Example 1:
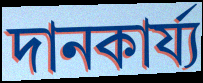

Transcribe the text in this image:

দানকার্য্য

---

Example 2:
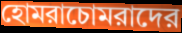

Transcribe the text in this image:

হোমরাচোমরাদের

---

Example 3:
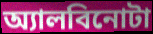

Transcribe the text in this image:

অ্যালবিনোটা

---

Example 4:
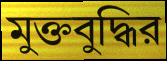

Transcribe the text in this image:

মুক্তবুদ্ধির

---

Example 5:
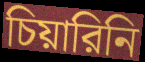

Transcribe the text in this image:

চিয়ারিনি